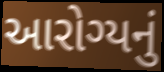
આરોગ્યનું